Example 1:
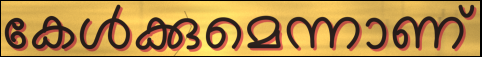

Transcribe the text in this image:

കേൾക്കുമെന്നാണ്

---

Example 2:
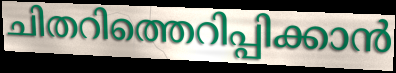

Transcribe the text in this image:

ചിതറിത്തെറിപ്പിക്കാൻ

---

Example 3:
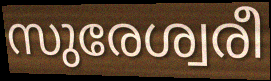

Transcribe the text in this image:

സുരേശ്വരീ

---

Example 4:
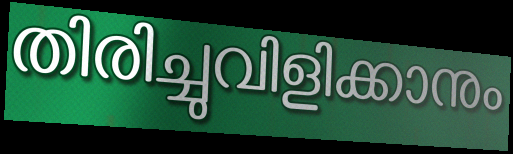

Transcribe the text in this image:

തിരിച്ചുവിളിക്കാനും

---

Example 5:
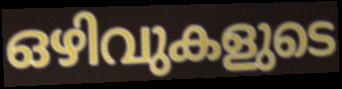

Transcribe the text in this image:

ഒഴിവുകളുടെ